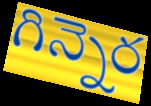
గిన్నెర